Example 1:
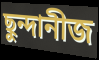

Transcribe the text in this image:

ছুন্দানীজ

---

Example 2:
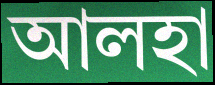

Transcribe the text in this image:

আলহা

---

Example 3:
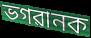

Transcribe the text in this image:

ভগৱানক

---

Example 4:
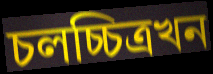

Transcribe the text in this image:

চলচ্চিত্ৰখন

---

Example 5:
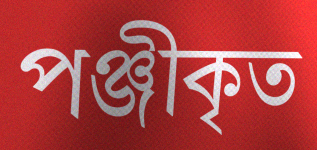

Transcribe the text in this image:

পঞ্জীকৃত